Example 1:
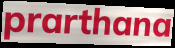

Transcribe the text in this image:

prarthana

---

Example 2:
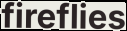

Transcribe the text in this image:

fireflies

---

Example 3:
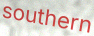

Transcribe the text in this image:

southern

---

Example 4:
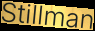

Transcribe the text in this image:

Stillman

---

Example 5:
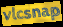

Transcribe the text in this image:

vlcsnap